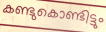
കണ്ടുകൊണ്ടിട്ടും